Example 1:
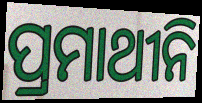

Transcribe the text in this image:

ପ୍ରମାଥୀନି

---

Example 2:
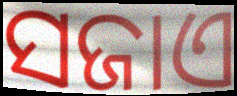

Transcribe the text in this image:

ସଜାଏ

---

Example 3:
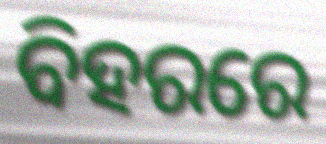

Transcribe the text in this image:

ବିହରରେ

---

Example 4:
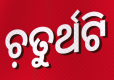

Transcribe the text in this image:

ଚ଼ତୁର୍ଥଟି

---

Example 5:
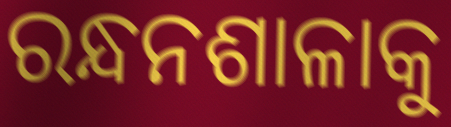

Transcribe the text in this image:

ରନ୍ଧନଶାଳାକୁ